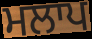
ਮਲਾਪ